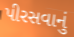
પીરસવાનું